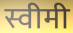
स्वीमी